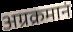
अग्रक्रमानं